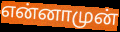
என்னாமுன்